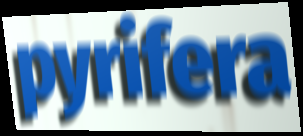
pyrifera